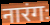
नारंगः